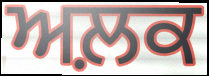
ਅਲ਼ਕ